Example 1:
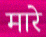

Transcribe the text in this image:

मारे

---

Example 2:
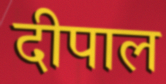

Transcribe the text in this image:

दीपाल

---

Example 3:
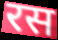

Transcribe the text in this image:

रस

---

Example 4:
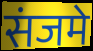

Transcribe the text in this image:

संजमे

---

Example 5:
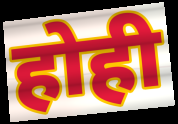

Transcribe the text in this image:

होही